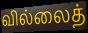
வில்லைத்